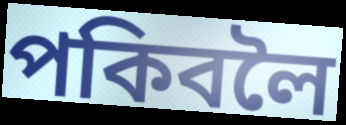
পকিবলৈ